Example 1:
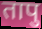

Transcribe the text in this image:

तापु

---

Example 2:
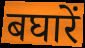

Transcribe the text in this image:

बघारें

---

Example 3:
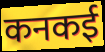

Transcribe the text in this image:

कनकई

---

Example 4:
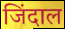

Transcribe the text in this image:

जिंदाल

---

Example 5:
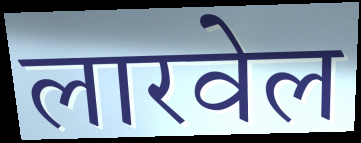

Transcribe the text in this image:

लारवेल